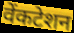
वेंकटेशन